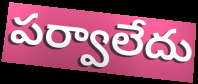
పర్వాలేదు